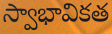
స్వాభావికత